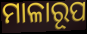
ମାଳାରୂପ